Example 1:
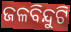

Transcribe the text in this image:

ଜଳବିନ୍ଦୁଟି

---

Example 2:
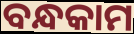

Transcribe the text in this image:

ବନ୍ଧକାମ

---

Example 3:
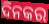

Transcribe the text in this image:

ଦିନକର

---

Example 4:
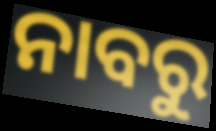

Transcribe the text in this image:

ନାବରୁ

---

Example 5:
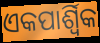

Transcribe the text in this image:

ଏକପାର୍ଶ୍ୱିକ